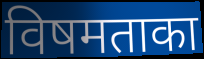
विषमताका